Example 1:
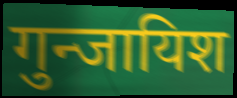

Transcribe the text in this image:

गुन्जायिश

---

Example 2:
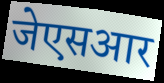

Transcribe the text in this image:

जेएसआर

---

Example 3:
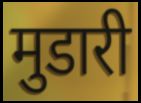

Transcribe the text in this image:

मुडारी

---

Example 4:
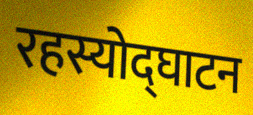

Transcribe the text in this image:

रहस्योद्घाटन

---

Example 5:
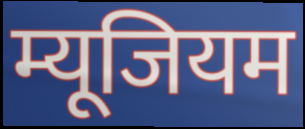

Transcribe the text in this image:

म्यूजियम